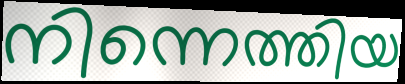
നിന്നെത്തിയ